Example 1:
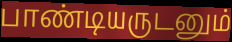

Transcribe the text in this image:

பாண்டியருடனும்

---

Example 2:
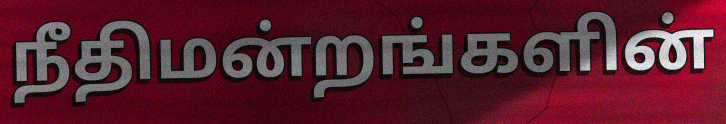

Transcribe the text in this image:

நீதிமன்றங்களின்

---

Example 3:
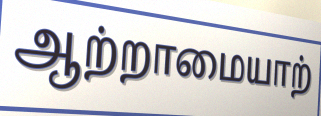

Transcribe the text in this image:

ஆற்றாமையாற்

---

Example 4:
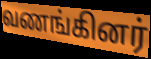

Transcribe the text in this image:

வணங்கினர்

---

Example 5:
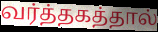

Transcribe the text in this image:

வர்த்தகத்தால்